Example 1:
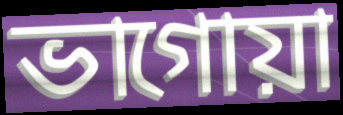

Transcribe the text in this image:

ভাগোয়া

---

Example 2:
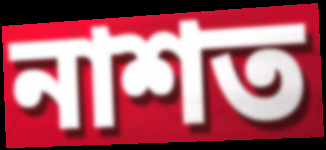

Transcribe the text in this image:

নাশত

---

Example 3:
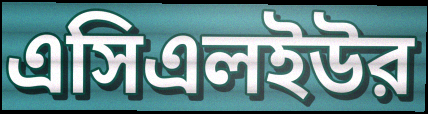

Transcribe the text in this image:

এসিএলইউর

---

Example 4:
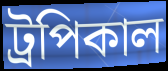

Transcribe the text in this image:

ট্রপিকাল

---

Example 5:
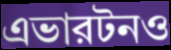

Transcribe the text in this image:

এভারটনও